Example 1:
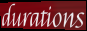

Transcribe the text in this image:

durations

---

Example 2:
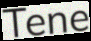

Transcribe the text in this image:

Tene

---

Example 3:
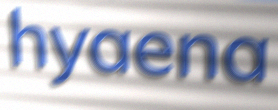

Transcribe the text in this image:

hyaena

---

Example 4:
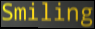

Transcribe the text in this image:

Smiling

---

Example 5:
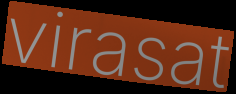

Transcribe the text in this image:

virasat